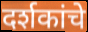
दर्शकांचे